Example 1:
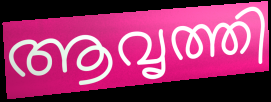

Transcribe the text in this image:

ആവൃത്തി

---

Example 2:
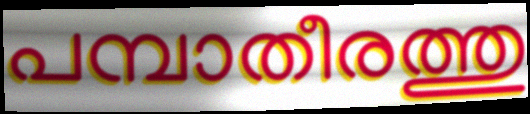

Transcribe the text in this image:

പമ്പാതീരത്തു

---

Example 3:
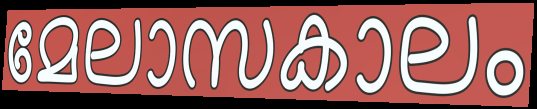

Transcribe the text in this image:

മേലാസകാലം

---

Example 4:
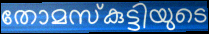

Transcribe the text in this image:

തോമസ്കുട്ടിയുടെ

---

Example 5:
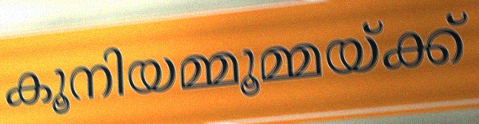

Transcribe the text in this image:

കൂനിയമ്മൂമ്മയ്ക്ക്